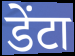
डेंटा